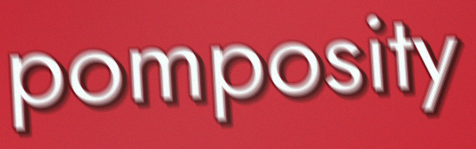
pomposity